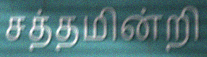
சத்தமின்றி